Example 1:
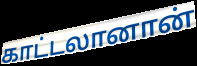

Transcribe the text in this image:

காட்டலானான்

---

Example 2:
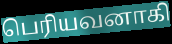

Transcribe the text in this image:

பெரியவனாகி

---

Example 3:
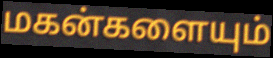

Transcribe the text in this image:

மகன்களையும்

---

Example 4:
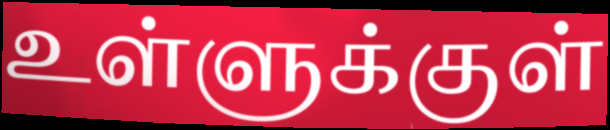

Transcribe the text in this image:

உள்ளுக்குள்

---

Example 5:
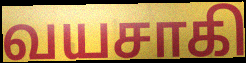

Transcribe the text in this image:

வயசாகி